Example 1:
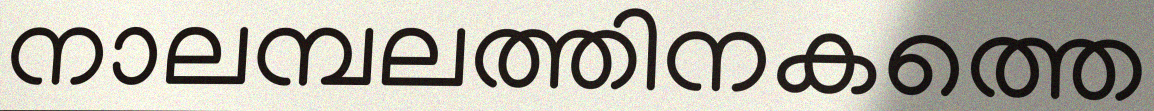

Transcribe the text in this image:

നാലമ്പലത്തിനകത്തെ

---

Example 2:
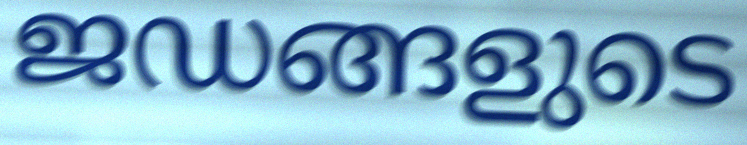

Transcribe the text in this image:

ജഡങ്ങളുടെ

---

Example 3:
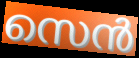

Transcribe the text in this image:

സെൻ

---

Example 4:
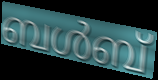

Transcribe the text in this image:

ബൾബ്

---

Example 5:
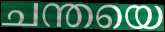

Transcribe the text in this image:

ചന്തയെ